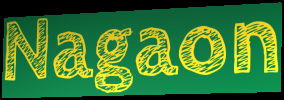
Nagaon